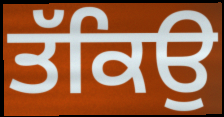
ਤੱਕਿਉ